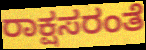
ರಾಕ್ಷಸರಂತೆ